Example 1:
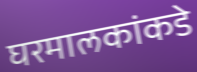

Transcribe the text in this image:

घरमालकांकडे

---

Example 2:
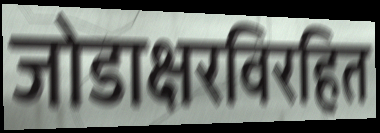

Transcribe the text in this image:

जोडाक्षरविरहित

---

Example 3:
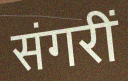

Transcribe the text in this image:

संगरीं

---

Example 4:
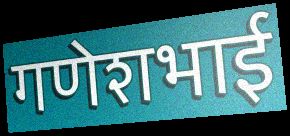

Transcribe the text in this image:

गणेशभाई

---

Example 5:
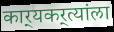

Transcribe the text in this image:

कार्यकर्त्यांला